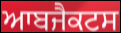
ਆਬਜੈਕਟਸ